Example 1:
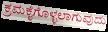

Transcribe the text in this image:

ಕ್ರಮಕೈಗೊಳ್ಳಲಾಗುವುದು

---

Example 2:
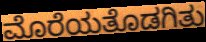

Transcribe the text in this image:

ಮೊರೆಯತೊಡಗಿತು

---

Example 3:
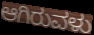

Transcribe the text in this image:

ಆಗಿರುವಳು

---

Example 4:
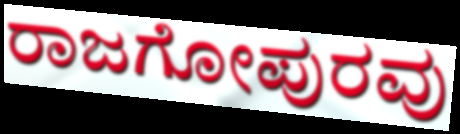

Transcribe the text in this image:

ರಾಜಗೋಪುರವು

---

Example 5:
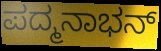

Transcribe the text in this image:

ಪದ್ಮನಾಭನ್